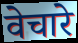
वेचारे